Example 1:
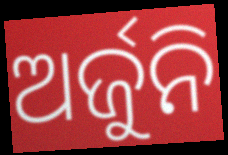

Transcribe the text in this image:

ଅର୍ଜୁନି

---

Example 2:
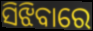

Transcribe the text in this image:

ସିଝିବାରେ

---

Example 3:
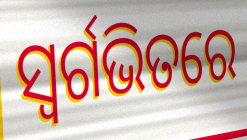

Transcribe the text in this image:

ସ୍ଵର୍ଗଭିତରେ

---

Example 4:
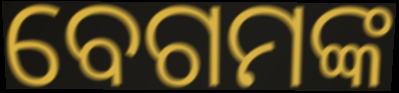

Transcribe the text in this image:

ବେଗମଙ୍କ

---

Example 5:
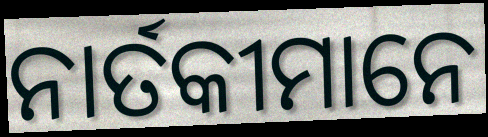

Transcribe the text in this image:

ନାର୍ତକୀମାନେ